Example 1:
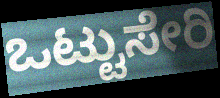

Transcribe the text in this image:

ಒಟ್ಟುಸೇರಿ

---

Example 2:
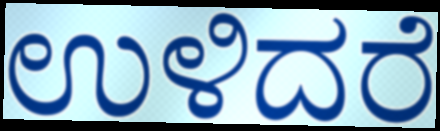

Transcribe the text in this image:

ಉಳಿದರೆ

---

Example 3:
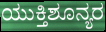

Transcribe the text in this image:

ಯುಕ್ತಿಶೂನ್ಯರ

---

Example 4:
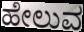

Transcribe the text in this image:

ಹೇಲುವ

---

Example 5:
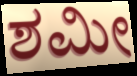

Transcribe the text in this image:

ಶಮೀ